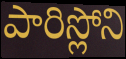
పారిస్లోని